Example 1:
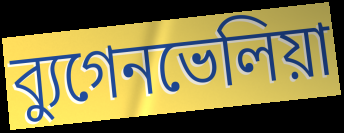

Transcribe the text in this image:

ব্যুগেনভেলিয়া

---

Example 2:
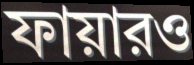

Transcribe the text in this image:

ফায়ারও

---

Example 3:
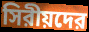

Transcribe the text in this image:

সিরীয়দের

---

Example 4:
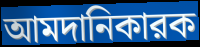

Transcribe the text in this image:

আমদানিকারক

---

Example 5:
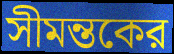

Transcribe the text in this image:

সীমন্তকের